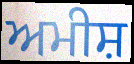
ਅਮੀਸ਼